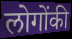
लोगोंकी